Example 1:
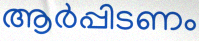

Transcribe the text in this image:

ആർപ്പിടണം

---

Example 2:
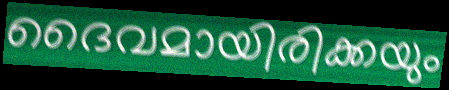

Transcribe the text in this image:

ദൈവമായിരിക്കയും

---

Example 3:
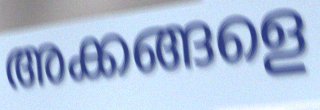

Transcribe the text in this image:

അക്കങ്ങളെ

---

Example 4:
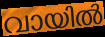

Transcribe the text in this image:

വായിൽ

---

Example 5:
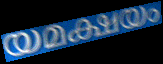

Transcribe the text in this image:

യമക്ഷയം